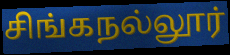
சிங்கநல்லூர்